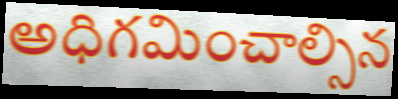
అధిగమించాల్సిన